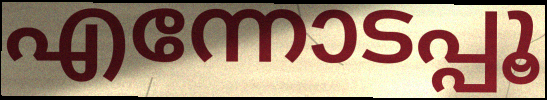
എന്നോടപ്പൂ